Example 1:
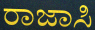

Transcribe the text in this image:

ರಾಜಾಸಿ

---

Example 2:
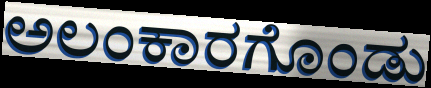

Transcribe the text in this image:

ಅಲಂಕಾರಗೊಂಡು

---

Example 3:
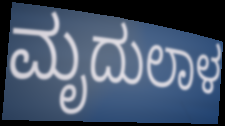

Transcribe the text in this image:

ಮೃದುಲಾಳ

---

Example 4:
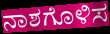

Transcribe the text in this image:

ನಾಶಗೊಳಿಸ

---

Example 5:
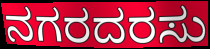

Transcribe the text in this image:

ನಗರದರಸು